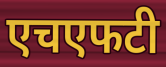
एचएफटी